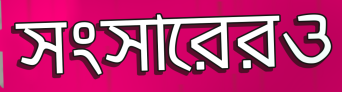
সংসারেরও